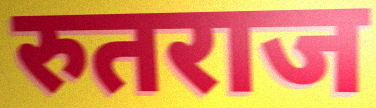
रुतराज